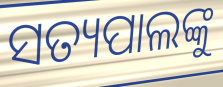
ସତ୍ୟପାଲଙ୍କୁ